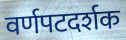
वर्णपटदर्शक